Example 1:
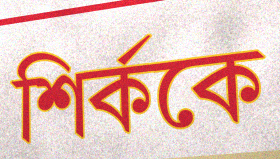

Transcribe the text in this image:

শির্ককে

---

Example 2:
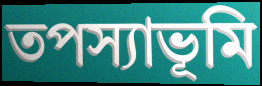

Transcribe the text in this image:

তপস্যাভূমি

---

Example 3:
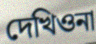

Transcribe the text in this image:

দেখিওনা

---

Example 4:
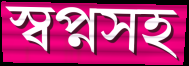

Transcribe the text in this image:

স্বপ্নসহ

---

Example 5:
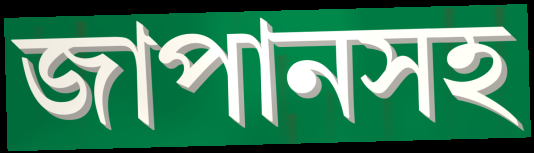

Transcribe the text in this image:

জাপানসহ